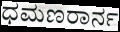
ಧಮಣರಾರ್ನ